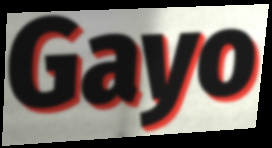
Gayo